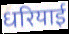
धरियाई